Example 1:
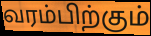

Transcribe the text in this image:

வரம்பிற்கும்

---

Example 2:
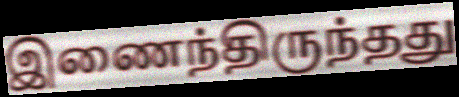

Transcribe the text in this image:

இணைந்திருந்தது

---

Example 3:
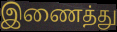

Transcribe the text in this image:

இணைத்து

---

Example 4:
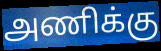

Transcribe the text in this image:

அணிக்கு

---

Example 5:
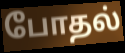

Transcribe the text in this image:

போதல்